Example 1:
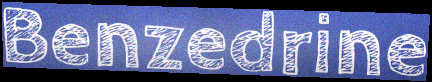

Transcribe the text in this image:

Benzedrine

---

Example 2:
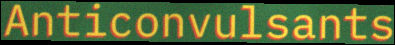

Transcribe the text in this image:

Anticonvulsants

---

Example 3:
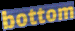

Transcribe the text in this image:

bottom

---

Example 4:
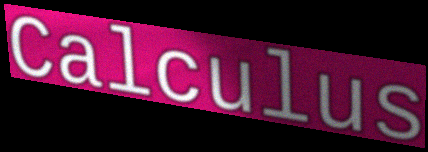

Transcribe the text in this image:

Calculus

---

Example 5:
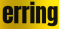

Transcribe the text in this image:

erring